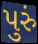
પુરું